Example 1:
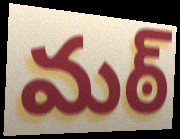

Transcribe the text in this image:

మఠ్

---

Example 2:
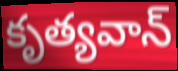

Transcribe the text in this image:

కృత్యవాన్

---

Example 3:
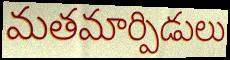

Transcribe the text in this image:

మతమార్పిడులు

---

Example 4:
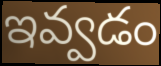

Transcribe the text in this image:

ఇవ్వడం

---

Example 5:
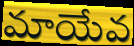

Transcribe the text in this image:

మాయేవ